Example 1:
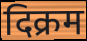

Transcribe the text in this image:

दिक्रम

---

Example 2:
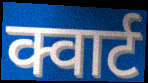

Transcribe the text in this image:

क्वार्ट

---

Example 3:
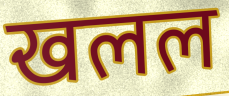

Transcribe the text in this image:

खलल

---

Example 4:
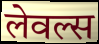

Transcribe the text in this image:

लेवल्स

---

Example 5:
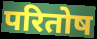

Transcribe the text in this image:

परितोष